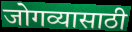
जोगव्यासाठी